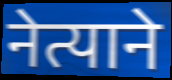
नेत्याने